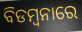
ବିଡମ୍ବନାରେ